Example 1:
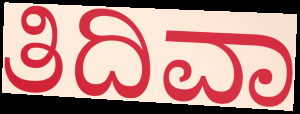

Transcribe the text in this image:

ತಿದಿವಾ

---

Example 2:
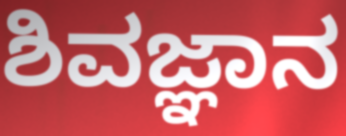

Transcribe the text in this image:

ಶಿವಜ್ಞಾನ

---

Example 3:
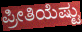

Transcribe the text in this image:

ಪ್ರೀತಿಯೆಷ್ಟು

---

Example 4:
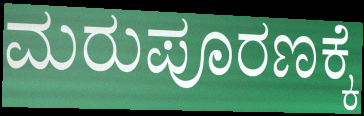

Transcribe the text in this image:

ಮರುಪೂರಣಕ್ಕೆ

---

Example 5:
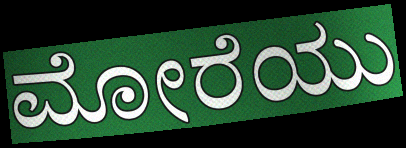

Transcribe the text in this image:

ಮೋರೆಯು